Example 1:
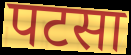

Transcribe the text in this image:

पटसा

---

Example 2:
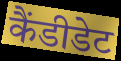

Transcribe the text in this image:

कैंडीडेट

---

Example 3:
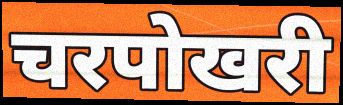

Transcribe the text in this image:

चरपोखरी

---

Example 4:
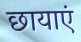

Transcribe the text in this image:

छायाएं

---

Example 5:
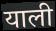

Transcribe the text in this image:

याली